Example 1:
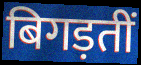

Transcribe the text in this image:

बिगड़तीं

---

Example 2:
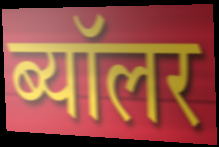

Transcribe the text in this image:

ब्यॉलर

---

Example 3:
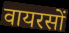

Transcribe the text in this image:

वायरसों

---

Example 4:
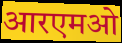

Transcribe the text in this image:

आरएमओ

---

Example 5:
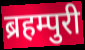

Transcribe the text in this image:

ब्रहम्पुरी